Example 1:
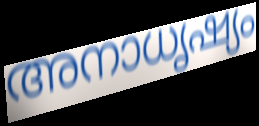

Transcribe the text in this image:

അനാധൃഷ്യം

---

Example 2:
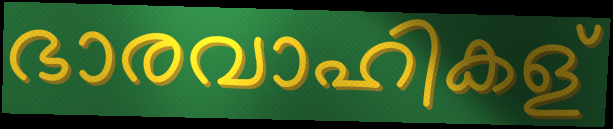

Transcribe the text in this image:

ഭാരവാഹികള്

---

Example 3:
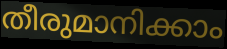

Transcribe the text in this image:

തീരുമാനിക്കാം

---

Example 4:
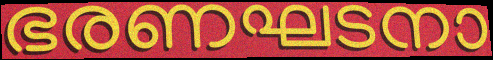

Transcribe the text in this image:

ഭരണഘടനാ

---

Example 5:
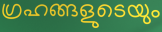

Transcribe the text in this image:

ഗ്രഹങ്ങളുടെയും